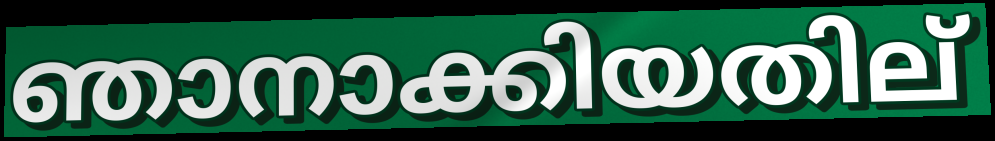
ഞാനാക്കിയതില്